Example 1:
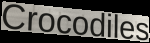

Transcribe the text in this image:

Crocodiles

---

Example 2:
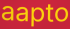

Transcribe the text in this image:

aapto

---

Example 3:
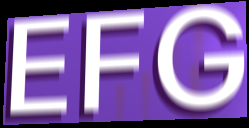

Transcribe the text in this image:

EFG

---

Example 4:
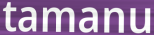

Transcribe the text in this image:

tamanu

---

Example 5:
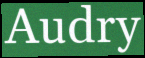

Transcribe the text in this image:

Audry